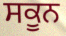
ਸਕੂਨ